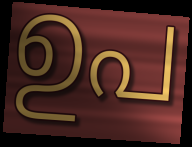
ഉപ